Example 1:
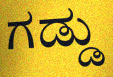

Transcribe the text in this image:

ಗಡ್ಡು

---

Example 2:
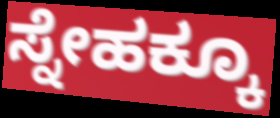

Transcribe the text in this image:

ಸ್ನೇಹಕ್ಕೂ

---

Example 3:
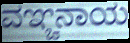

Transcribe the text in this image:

ವಞ್ಚನಾಯ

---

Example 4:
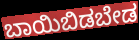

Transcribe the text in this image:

ಬಾಯಿಬಿಡಬೇಡ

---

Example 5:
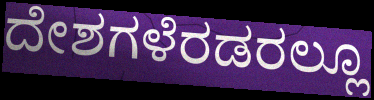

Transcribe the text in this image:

ದೇಶಗಳೆರಡರಲ್ಲೂ